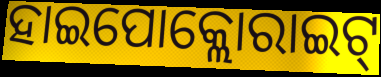
ହାଇପୋକ୍ଲୋରାଇଟ୍